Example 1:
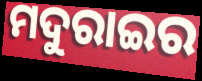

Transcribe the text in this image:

ମଦୁରାଇର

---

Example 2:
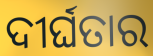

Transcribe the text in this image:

ଦୀର୍ଘତାର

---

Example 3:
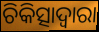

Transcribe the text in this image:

ଚିକିତ୍ସାଦ୍ଵାରା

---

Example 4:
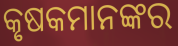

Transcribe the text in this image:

କୃଷକମାନଙ୍କର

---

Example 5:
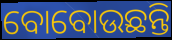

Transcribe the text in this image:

ବୋବୋଉଛନ୍ତି